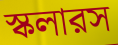
স্কলারস